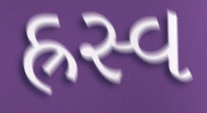
હ્રસ્વ